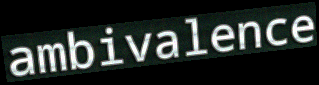
ambivalence